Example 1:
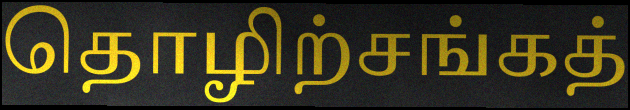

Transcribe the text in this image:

தொழிற்சங்கத்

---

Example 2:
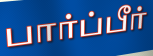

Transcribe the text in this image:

பார்ப்பீர்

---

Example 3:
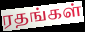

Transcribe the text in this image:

ரதங்கள்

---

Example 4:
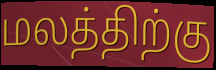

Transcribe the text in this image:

மலத்திற்கு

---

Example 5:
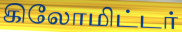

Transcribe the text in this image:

கிலோமிட்டர்